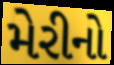
મેરીનો